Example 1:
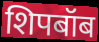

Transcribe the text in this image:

शिपबॉब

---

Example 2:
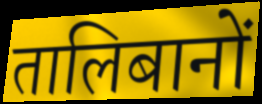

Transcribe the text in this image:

तालिबानों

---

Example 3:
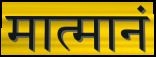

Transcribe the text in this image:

मात्मानं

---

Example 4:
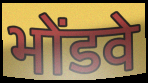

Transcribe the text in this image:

भोंडवे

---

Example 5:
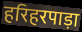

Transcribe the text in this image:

हरिहरपाड़ा